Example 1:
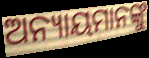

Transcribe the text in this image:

ଅନ୍ୟାୟମାନଙ୍କୁ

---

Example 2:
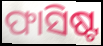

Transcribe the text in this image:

ଫାସିଷ୍ଟ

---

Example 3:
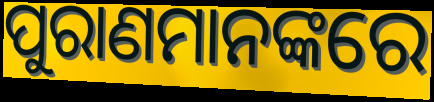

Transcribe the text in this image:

ପୁରାଣମାନଙ୍କରେ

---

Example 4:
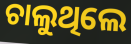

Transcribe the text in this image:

ଚାଲୁଥିଲେ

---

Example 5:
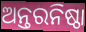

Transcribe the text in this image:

ଅନ୍ତରନିଷ୍ଠା